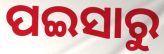
ପଇସାରୁ